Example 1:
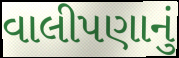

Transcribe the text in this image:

વાલીપણાનું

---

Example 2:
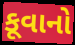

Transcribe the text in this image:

કૂવાનો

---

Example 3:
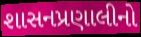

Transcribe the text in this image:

શાસનપ્રણાલીનો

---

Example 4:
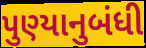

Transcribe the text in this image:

પુણ્યાનુબંધી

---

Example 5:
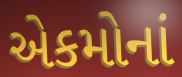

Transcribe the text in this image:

એકમોનાં